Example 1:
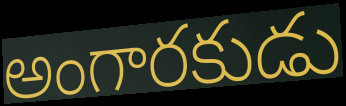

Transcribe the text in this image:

అంగారకుడు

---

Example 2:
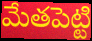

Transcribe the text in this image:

మేతపెట్టి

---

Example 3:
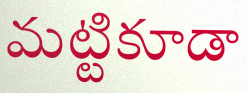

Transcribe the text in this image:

మట్టికూడా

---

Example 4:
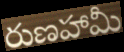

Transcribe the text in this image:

రుణహామీ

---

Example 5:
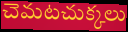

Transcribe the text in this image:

చెమటచుక్కలు